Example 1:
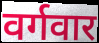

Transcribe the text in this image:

वर्गवार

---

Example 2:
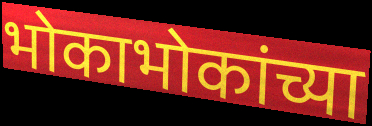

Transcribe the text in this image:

भोकाभोकांच्या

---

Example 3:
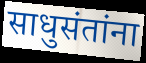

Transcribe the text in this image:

साधुसंतांना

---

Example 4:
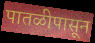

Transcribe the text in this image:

पातळीपासून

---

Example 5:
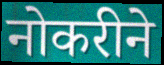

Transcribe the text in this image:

नोकरीने